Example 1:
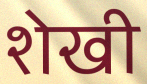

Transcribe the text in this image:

शेखी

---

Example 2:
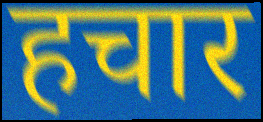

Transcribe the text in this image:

हचार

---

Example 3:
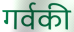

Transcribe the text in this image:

गर्वकी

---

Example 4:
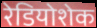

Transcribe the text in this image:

रेडियोशेक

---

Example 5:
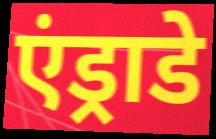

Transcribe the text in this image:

एंड्राडे